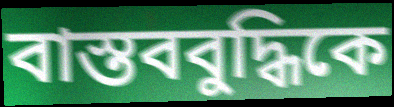
বাস্তববুদ্ধিকে